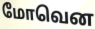
மோவென